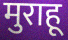
मुराहू